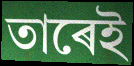
তাৰেই